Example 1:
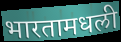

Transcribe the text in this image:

भारतामधली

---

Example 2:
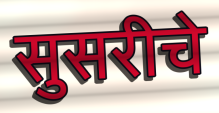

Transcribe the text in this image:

सुसरीचे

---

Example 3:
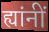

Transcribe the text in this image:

ह्यांनीं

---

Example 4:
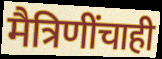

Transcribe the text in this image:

मैत्रिणींचाही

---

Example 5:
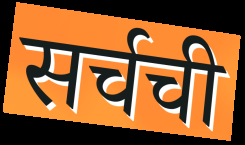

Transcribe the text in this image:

सर्चची